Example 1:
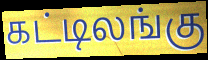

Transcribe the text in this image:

கட்டிலங்கு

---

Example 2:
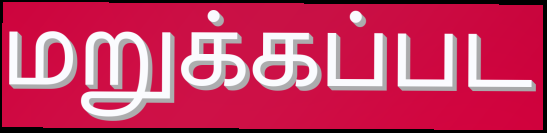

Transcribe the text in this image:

மறுக்கப்பட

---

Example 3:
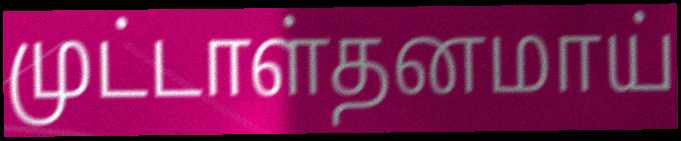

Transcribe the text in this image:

முட்டாள்தனமாய்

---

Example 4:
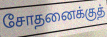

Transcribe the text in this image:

சோதனைக்குத்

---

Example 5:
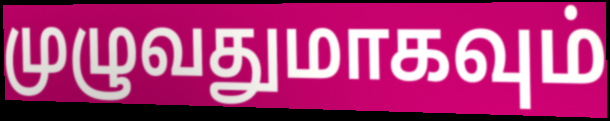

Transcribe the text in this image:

முழுவதுமாகவும்